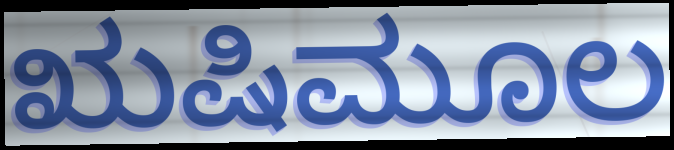
ಋಷಿಮೂಲ